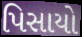
પિસાયો